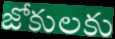
జోకులకు